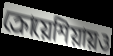
ক্রোয়েশিয়ায়ও